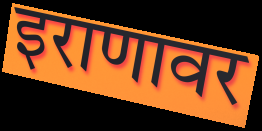
इराणावर